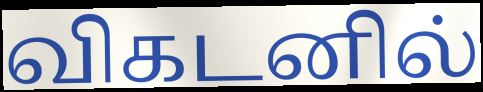
விகடனில்